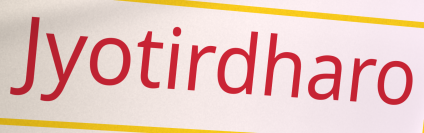
Jyotirdharo